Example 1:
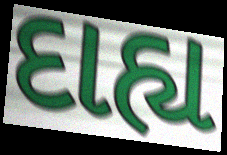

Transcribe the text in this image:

દાહ્ય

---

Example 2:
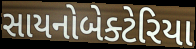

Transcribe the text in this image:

સાયનોબેક્ટેરિયા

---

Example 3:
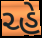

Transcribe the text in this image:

ચ્હે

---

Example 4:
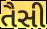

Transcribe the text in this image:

તૈસી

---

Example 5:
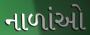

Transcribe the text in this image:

નાળાંઓ